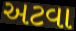
અટવા